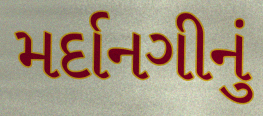
મર્દાનગીનું